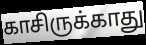
காசிருக்காது